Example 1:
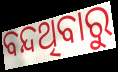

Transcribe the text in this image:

ବନ୍ଦଥିବାରୁ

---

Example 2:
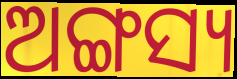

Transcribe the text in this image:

ଅଙ୍ଗସ୍ୟ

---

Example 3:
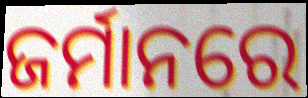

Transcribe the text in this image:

ଜର୍ମାନରେ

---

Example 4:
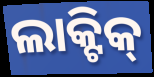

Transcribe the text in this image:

ଲାକ୍ଟିକ୍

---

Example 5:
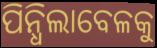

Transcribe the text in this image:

ପିନ୍ଧିଲାବେଳକୁ